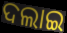
ଦଲାଇ